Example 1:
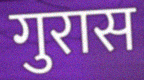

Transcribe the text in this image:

गुरास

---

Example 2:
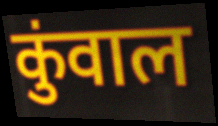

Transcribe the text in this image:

कुंवाल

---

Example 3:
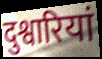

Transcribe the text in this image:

दुश्वारियां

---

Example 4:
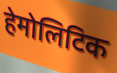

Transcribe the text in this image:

हेमोलिटिक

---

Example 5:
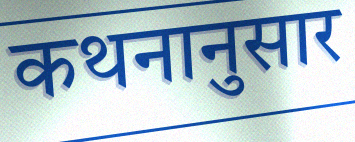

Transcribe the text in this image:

कथनानुसार